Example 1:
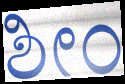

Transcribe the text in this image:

ಶೀಂ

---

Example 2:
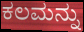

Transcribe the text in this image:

ಕಲಮನ್ನು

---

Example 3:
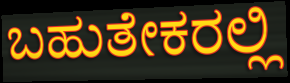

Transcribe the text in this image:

ಬಹುತೇಕರಲ್ಲಿ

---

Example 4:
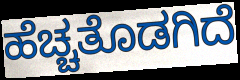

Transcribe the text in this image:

ಹೆಚ್ಚತೊಡಗಿದೆ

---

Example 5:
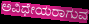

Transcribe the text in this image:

ಅವಿಧೇಯರಾಗುವ